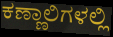
ಕಣ್ಣಾಲಿಗಳಲ್ಲಿ